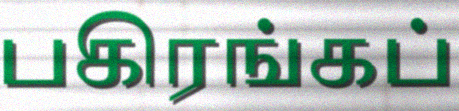
பகிரங்கப்